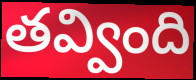
తవ్వింది